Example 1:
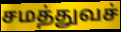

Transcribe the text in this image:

சமத்துவச்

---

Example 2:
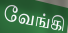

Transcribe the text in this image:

வேங்கி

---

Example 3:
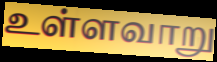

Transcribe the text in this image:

உள்ளவாறு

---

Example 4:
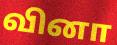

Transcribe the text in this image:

வினா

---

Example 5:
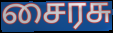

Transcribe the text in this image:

சைரசு